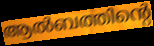
ആൽബത്തിന്റെ